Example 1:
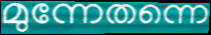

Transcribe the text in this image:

മുന്നേതന്നെ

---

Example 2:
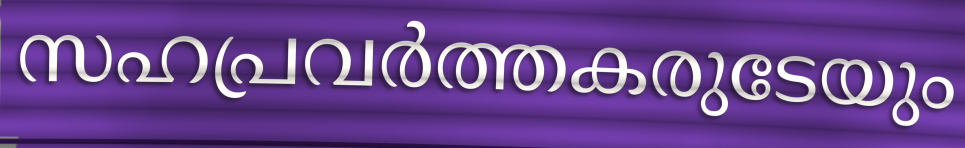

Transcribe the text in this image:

സഹപ്രവർത്തകരുടേയും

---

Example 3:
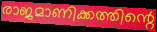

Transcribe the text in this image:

രാജമാണിക്കത്തിന്റെ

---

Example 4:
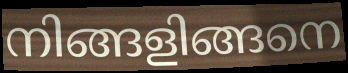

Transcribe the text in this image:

നിങ്ങളിങ്ങനെ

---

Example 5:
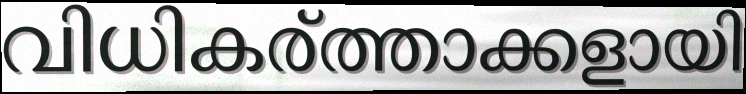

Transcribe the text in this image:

വിധികര്ത്താക്കളായി